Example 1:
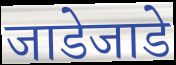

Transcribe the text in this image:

जाडेजाडे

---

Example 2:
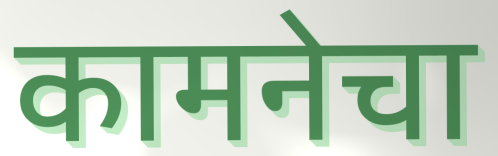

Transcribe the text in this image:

कामनेचा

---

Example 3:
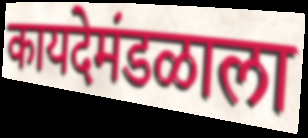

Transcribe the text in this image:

कायदेमंडळाला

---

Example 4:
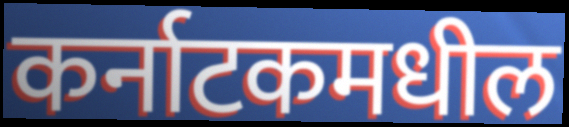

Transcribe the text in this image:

कर्नाटकमधील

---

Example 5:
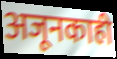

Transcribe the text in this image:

अजूनकाही